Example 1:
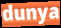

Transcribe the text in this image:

dunya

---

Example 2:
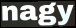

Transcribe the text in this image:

nagy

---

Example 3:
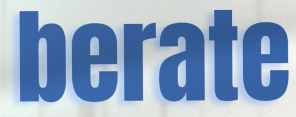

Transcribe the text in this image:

berate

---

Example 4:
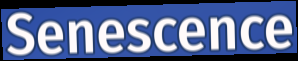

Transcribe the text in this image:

Senescence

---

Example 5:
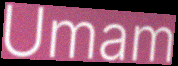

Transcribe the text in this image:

Umam